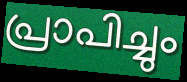
പ്രാപിച്ചും